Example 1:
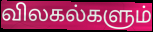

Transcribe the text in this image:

விலகல்களும்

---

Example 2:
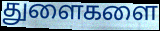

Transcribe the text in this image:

துளைகளை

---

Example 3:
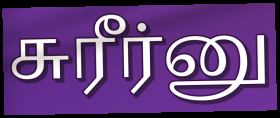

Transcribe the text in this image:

சுரீர்னு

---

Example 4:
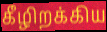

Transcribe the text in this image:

கீழிறக்கிய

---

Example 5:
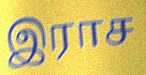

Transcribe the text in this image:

இராச